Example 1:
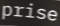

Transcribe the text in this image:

prise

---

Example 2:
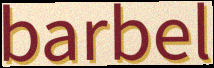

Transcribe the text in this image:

barbel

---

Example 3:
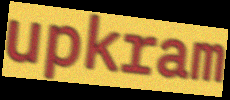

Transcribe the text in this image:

upkram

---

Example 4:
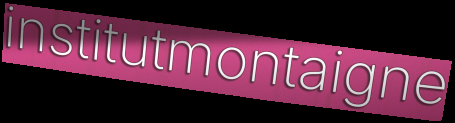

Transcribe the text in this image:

institutmontaigne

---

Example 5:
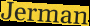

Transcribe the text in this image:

Jerman